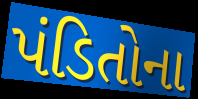
પંડિતોના